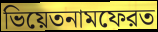
ভিয়েতনামফেরত